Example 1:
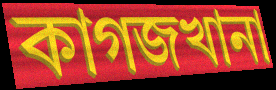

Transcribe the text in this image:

কাগজখানা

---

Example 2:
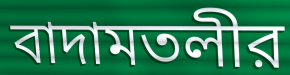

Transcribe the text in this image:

বাদামতলীর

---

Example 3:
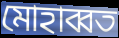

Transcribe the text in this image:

মোহাব্বত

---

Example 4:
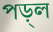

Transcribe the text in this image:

পড়্ল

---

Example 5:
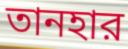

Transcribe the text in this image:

তানহার